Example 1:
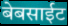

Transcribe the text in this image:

बेबसाईट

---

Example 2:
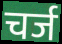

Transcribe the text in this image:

चर्ज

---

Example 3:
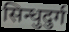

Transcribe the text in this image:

सिन्धुदुर्ग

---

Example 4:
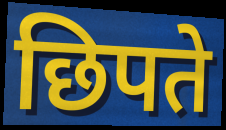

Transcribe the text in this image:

छिपते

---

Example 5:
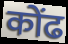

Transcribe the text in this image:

कोंढ